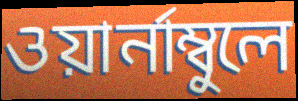
ওয়ার্নাম্বুলে